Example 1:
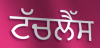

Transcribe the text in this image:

ਟੱਚਲੈੱਸ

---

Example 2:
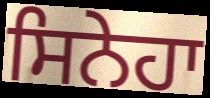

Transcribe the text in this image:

ਸਿਨੇਹਾ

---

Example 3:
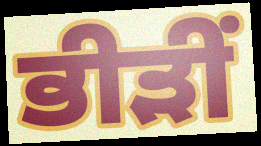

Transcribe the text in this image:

ਭੀੜੀਂ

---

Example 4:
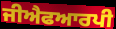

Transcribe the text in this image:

ਜੀਐਫਆਰਪੀ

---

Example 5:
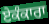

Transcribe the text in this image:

ਏਕੰਕਾਰਾ